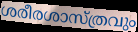
ശരീരശാസ്ത്രവും